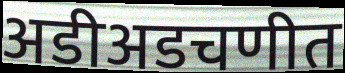
अडीअडचणीत